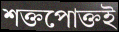
শক্তপোক্তই